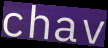
chav